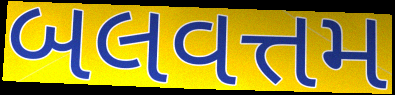
બલવત્તમ